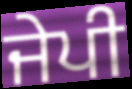
ਜੇਪੀ